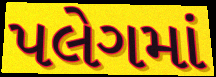
પલેગમાં